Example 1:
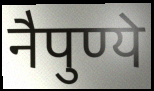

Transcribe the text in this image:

नैपुण्ये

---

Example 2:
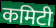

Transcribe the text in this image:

कमिटी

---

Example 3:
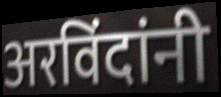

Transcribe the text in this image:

अरविंदांनी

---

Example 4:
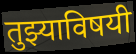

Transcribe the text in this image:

तुझ्याविषयी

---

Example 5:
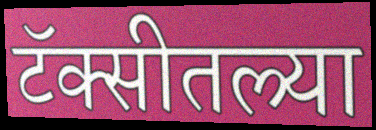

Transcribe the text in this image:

टॅक्सीतल्या